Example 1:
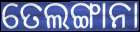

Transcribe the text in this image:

ତେଲଙ୍ଗାନା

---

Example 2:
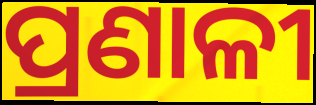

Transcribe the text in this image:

ପ୍ରଣାଳୀ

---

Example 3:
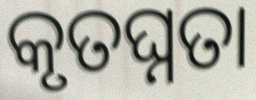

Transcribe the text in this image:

କୃତଘ୍ନତା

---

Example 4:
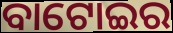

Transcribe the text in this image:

ବାଟୋଇର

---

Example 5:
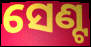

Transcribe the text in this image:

ସେଣ୍ଟ